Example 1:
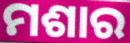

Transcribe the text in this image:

ମଶାର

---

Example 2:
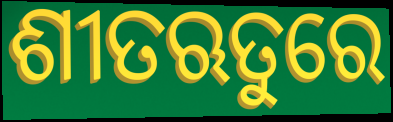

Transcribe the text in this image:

ଶୀତଋତୁରେ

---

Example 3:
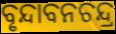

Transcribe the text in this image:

ବୃନ୍ଦାବନଚନ୍ଦ୍ର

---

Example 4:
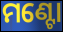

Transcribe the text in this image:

ମଣ୍ଟୋ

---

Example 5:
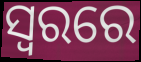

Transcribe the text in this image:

ସ୍ୱରରେ